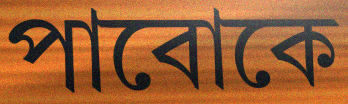
পাবোকে